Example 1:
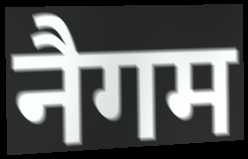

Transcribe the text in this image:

नैगम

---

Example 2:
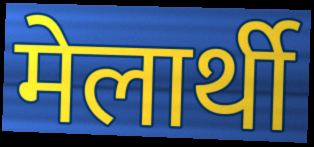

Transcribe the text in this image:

मेलार्थी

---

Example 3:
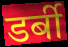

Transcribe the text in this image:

डर्बी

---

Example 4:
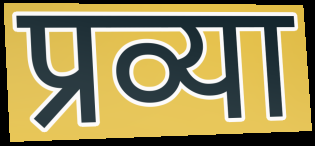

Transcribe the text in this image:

प्रव्या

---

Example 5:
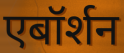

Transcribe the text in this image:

एबॉर्शन